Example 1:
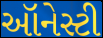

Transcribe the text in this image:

ઑનેસ્ટી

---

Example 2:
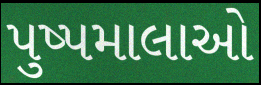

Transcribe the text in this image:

પુષ્પમાલાઓ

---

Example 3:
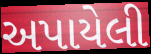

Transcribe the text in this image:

અપાયેલી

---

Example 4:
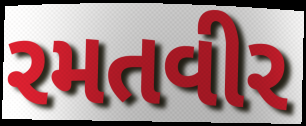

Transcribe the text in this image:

રમતવીર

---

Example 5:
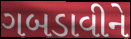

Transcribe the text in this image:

ગબડાવીને